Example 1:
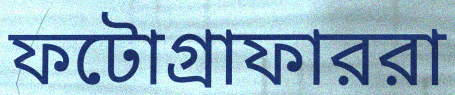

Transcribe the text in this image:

ফটোগ্রাফাররা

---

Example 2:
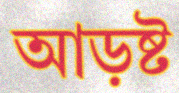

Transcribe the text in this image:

আড়ষ্ট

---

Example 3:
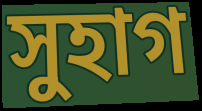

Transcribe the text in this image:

সুহাগ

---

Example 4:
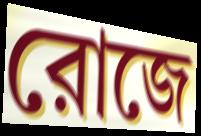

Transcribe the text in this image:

রোজে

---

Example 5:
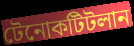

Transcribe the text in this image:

টেনোকটিটলান